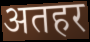
अतहर